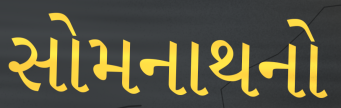
સોમનાથનો